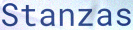
Stanzas